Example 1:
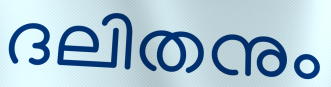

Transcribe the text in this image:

ദലിതനും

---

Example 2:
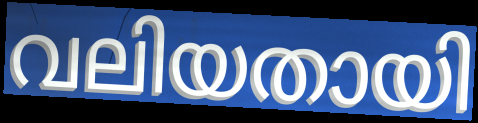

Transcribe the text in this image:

വലിയതായി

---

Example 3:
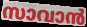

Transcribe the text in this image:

സാവാൻ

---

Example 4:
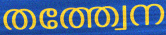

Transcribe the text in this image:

തത്ത്വേന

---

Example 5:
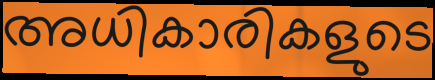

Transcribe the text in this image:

അധികാരികളുടെ